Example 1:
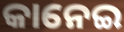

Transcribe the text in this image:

କାନେଇ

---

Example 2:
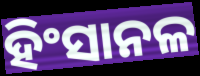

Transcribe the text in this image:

ହିଂସାନଳ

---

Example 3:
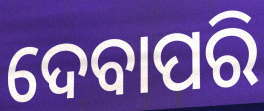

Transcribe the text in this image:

ଦେବାପରି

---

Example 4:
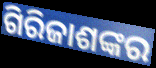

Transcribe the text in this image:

ଗିରିଜାଶଙ୍କର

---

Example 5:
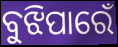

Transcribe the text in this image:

ବୁଝିପାରେଁ